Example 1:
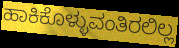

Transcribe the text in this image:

ಹಾಕಿಕೊಳ್ಳುವಂತಿರಲಿಲ್ಲ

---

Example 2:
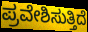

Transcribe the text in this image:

ಪ್ರವೇಶಿಸುತ್ತಿದೆ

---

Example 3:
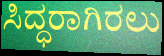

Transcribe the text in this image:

ಸಿದ್ಧರಾಗಿರಲು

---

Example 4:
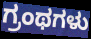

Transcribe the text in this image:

ಗ್ರಂಥಗಳು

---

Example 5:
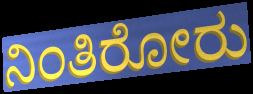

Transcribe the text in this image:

ನಿಂತಿರೋರು